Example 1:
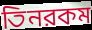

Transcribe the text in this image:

তিনরকম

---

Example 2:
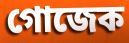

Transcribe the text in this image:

গোজেক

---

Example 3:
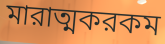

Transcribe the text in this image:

মারাত্মকরকম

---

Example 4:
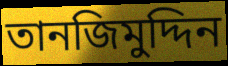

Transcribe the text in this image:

তানজিমুদ্দিন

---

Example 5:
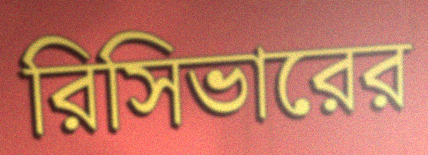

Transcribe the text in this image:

রিসিভারের